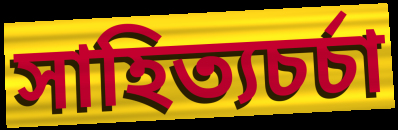
সাহিত্যচর্চা